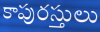
కాపురస్తులు